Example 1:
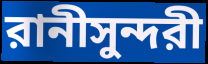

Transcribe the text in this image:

রানীসুন্দরী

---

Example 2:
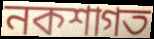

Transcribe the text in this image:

নকশাগত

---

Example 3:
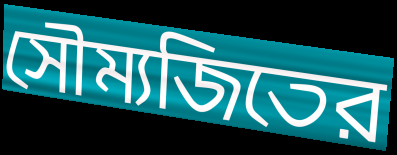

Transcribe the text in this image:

সৌম্যজিতের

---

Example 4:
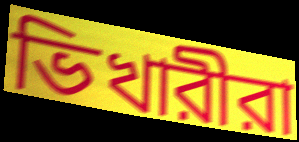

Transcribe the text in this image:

ভিখারীরা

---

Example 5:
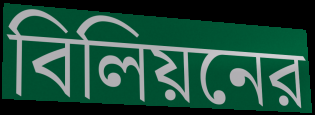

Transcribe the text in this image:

বিলিয়নের